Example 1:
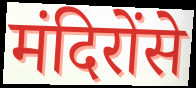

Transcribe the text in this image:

मंदिरोंसे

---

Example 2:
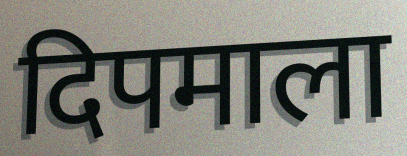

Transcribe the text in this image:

दिपमाला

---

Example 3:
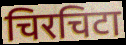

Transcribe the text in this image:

चिरचिटा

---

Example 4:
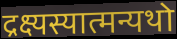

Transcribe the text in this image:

द्रक्ष्यस्यात्मन्यथो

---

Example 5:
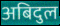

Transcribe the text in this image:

अबिदुल